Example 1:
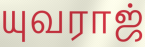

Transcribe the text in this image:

யுவராஜ்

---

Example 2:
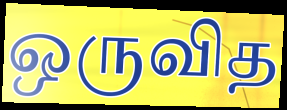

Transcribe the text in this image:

ஒருவித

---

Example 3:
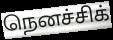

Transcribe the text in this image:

நெனச்சிக்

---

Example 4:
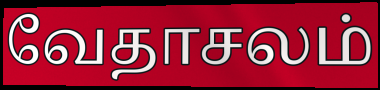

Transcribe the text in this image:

வேதாசலம்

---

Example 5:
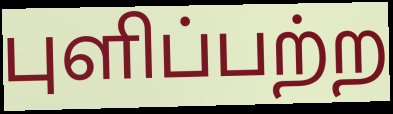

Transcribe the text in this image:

புளிப்பற்ற